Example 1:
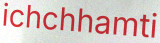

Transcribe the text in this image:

ichchhamti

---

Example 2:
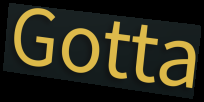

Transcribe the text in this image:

Gotta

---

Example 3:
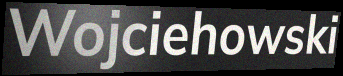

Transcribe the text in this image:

Wojciehowski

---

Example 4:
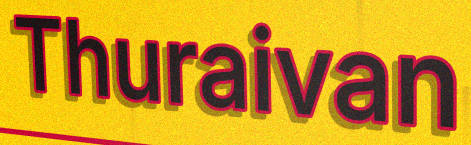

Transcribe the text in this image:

Thuraivan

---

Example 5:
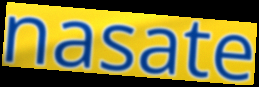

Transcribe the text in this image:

nasate